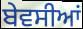
ਬੇਵਸੀਆਂ